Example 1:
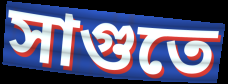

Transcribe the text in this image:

সাগুতে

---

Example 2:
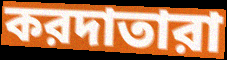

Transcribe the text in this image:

করদাতারা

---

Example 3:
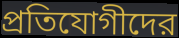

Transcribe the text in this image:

প্রতিযোগীদের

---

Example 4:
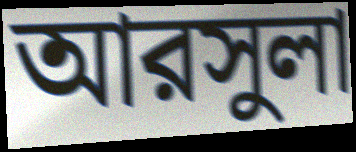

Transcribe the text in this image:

আরসুলা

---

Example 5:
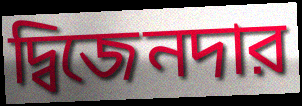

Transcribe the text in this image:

দ্বিজেনদার